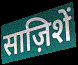
साज़िशें